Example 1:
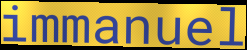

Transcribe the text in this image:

immanuel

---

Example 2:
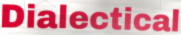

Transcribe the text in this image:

Dialectical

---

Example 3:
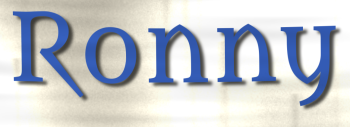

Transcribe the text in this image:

Ronny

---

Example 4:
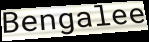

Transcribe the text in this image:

Bengalee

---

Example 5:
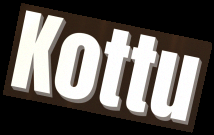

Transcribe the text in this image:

Kottu